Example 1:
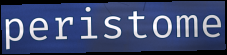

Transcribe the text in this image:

peristome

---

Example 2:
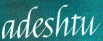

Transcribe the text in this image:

adeshtu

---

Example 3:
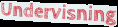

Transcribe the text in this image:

Undervisning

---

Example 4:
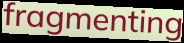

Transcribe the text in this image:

fragmenting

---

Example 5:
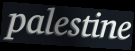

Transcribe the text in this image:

palestine